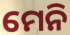
ମେନି